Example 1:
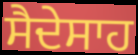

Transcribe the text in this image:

ਸੈਦੇਸਾਹ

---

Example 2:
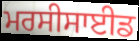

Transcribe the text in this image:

ਮਰਸੀਸਾਈਡ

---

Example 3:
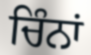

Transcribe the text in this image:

ਚਿੰਨਾਂ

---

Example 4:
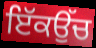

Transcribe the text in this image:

ਇੱਕਉੱਚ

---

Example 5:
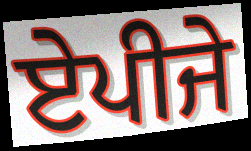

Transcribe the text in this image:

ਏਪੀਜੇ